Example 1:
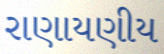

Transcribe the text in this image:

રાણાયણીય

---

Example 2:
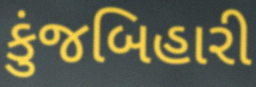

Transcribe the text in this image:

કુંજબિહારી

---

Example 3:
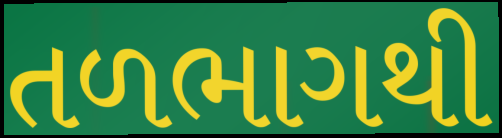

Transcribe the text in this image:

તળભાગથી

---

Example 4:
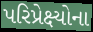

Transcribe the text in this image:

પરિપ્રેક્ષ્યોના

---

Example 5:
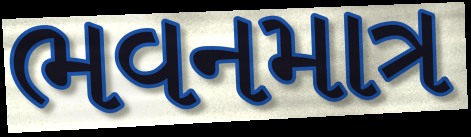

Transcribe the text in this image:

ભવનમાત્ર